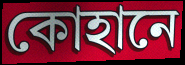
কোহানে